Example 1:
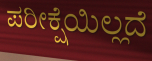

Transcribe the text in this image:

ಪರೀಕ್ಷೆಯಿಲ್ಲದೆ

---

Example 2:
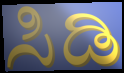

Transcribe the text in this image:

ಸಿಡಿ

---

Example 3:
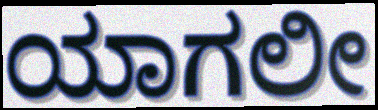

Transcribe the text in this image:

ಯಾಗಲೀ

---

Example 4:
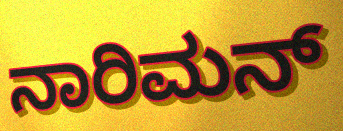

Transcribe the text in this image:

ನಾರಿಮನ್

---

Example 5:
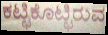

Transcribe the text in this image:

ಕಟ್ಟಿಕೊಟ್ಟಿರುವ